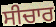
ਸੀਚਾਰ